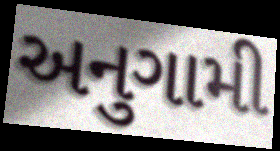
અનુગામી